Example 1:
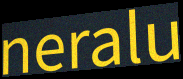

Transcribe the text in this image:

neralu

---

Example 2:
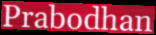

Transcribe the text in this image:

Prabodhan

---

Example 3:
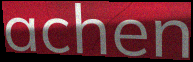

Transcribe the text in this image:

achen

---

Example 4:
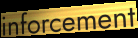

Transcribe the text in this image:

inforcement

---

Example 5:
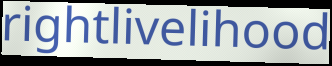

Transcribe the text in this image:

rightlivelihood